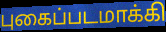
புகைப்படமாக்கி